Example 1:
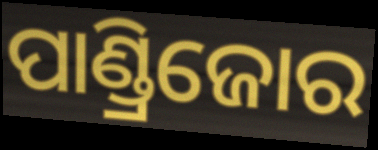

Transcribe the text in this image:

ପାଣ୍ଡ୍ରିଜୋର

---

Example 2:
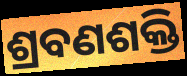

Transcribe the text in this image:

ଶ୍ରବଣଶକ୍ତି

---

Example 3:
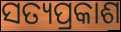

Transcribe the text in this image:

ସତ୍ୟପ୍ରକାଶ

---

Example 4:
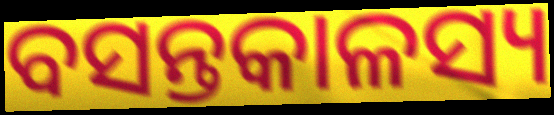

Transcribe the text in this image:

ବସନ୍ତକାଳସ୍ୟ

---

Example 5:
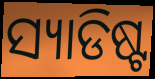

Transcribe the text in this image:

ସ୍ୟାଡିଷ୍ଟ